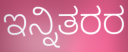
ಇನ್ನಿತರರ